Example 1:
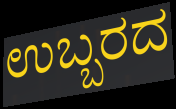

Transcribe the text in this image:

ಉಬ್ಬರದ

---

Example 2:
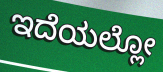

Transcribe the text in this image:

ಇದೆಯಲ್ಲೋ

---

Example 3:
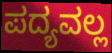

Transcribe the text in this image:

ಪದ್ಯವಲ್ಲ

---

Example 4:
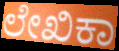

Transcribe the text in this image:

ಲೇಖಿಕಾ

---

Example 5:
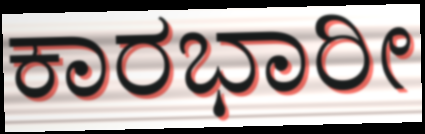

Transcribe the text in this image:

ಕಾರಭಾರೀ